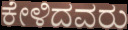
ಕೇಳಿದವರು